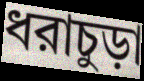
ধরাচুড়া